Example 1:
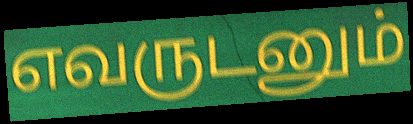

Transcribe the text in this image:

எவருடனும்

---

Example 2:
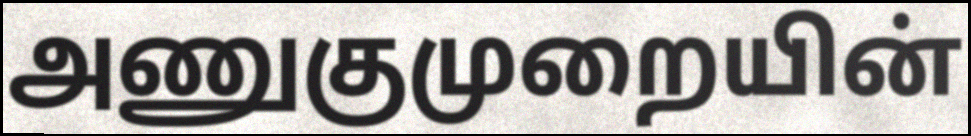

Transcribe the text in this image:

அணுகுமுறையின்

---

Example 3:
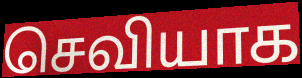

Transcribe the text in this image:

செவியாக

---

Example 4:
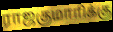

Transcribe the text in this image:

ராஜகுமாரிக்கு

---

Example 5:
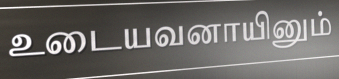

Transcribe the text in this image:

உடையவனாயினும்